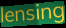
lensing